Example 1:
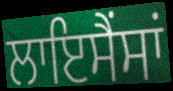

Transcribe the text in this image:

ਲਾਇਸੈਂਸਾਂ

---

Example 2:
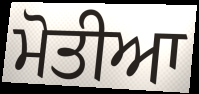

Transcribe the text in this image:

ਮੋਤੀਆ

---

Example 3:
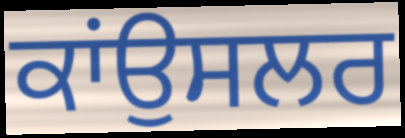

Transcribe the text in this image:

ਕਾਂਉਸਲਰ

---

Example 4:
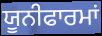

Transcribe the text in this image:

ਯੂਨੀਫਾਰਮਾਂ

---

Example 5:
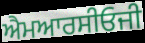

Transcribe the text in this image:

ਐਮਆਰਸੀਓਜੀ